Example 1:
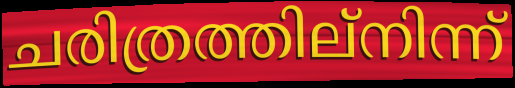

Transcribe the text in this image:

ചരിത്രത്തില്നിന്ന്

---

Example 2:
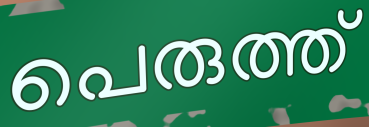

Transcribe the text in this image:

പെരുത്ത്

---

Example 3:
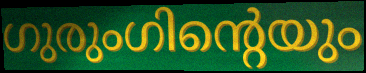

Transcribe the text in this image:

ഗുരുംഗിന്റെയും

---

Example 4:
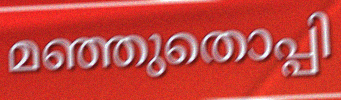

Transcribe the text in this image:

മഞ്ഞുതൊപ്പി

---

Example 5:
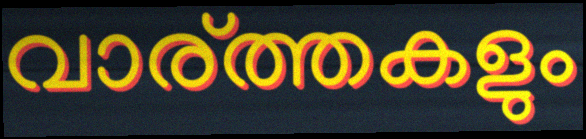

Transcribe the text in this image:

വാര്ത്തകളും